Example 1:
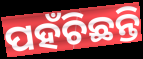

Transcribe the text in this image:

ପହଁଚିଛନ୍ତି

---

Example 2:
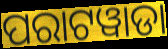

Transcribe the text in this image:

ପରାଟୱାଡା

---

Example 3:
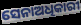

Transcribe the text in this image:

ସେନାଅଧିକାରୀ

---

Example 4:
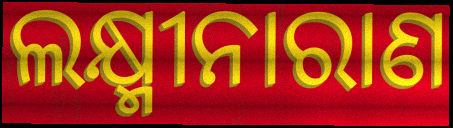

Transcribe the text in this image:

ଲକ୍ଷ୍ମୀନାରାଣ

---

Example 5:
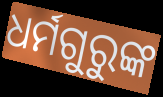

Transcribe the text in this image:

ଧର୍ମଗୁରୁଙ୍କ